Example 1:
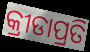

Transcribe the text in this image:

କ୍ରୀଡାପ୍ରତି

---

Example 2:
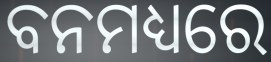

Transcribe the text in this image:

ବନମଧ୍ୟରେ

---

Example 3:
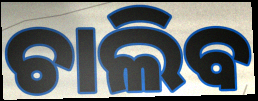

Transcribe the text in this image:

ଚାଲିବ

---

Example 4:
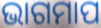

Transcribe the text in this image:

ଭାଗମାପ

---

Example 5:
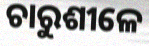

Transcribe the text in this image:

ଚାରୁଶୀଳେ